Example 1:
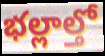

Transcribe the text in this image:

భల్లాల్తో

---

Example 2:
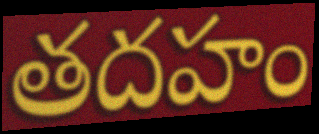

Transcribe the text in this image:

తదహం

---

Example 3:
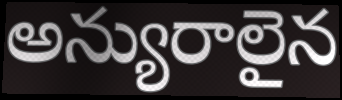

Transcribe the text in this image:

అన్యురాలైన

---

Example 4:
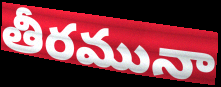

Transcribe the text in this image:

తీరమునా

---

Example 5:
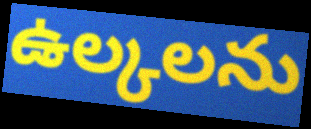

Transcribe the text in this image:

ఉల్కలను